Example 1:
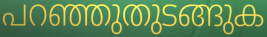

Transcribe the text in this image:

പറഞ്ഞുതുടങ്ങുക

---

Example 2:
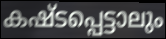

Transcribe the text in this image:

കഷ്ടപ്പെട്ടാലും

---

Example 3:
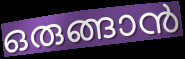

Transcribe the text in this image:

ഒരുങ്ങാൻ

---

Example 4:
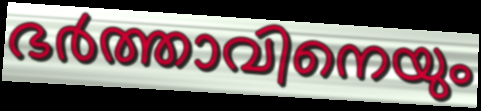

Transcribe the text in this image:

ഭർത്താവിനെയും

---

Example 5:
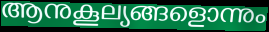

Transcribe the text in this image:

ആനുകൂല്യങ്ങളൊന്നും